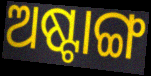
ଅଷ୍ଟାଙ୍ଗ